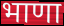
भाणा